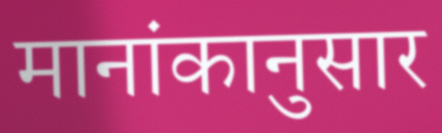
मानांकानुसार